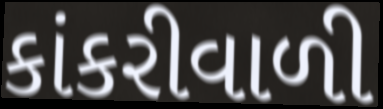
કાંકરીવાળી